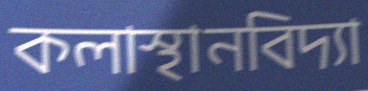
কলাস্থানবিদ্যা